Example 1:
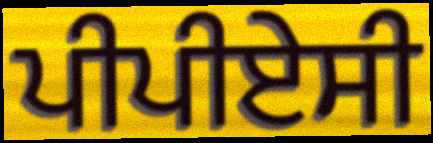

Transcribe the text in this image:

ਪੀਪੀਏਸੀ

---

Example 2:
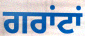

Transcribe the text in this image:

ਗਰਾਂਟਾਂ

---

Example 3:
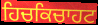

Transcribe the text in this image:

ਹਿਚਕਿਚਾਹਟ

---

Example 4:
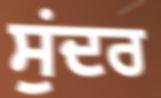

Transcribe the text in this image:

ਸੁਂਦਰ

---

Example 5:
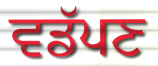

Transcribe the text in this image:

ਵਡੱਪਣ